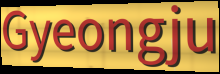
Gyeongju